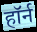
हॉर्न